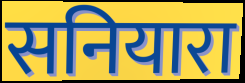
सनियारा